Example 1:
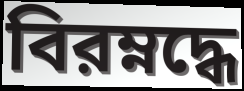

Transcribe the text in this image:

বিরম্নদ্ধে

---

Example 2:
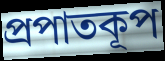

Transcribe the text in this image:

প্রপাতকূপ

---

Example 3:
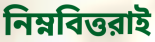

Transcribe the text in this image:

নিম্নবিত্তরাই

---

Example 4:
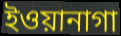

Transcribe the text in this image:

ইওয়ানাগা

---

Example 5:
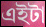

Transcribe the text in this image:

এইটা